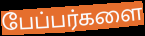
பேப்பர்களை